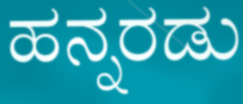
ಹನ್ನರಡು